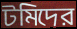
টমিদের